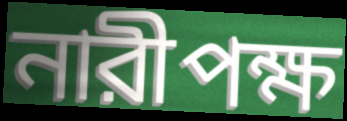
নারীপক্ষ